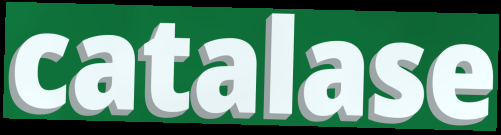
catalase